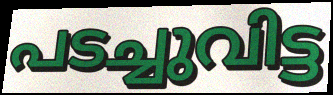
പടച്ചുവിട്ട